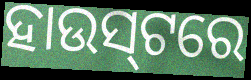
ହାଉସ୍‌ଟରେ